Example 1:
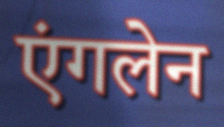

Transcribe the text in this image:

एंगलेन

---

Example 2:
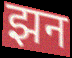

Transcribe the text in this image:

झन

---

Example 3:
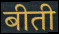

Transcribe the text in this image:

बीती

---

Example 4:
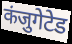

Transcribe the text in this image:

कंजुगेटेड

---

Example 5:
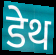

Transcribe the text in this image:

डेथ